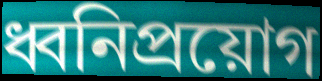
ধ্বনিপ্রয়োগ